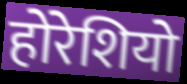
होरेशियो